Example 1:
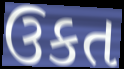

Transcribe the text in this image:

ઉકત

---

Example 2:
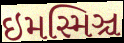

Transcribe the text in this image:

ઇમસ્મિઞ્ચ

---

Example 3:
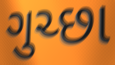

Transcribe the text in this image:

ગુચ્છા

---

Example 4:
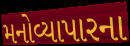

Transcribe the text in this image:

મનોવ્યાપારના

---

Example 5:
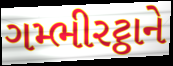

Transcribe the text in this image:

ગમ્ભીરટ્ઠાને